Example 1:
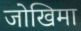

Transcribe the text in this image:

जोखिमा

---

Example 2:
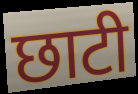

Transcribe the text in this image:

छाटी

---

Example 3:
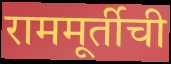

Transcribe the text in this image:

राममूर्तीची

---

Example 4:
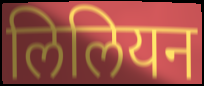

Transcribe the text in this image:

लिलियन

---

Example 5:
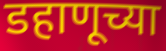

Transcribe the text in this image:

डहाणूच्या